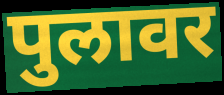
पुलावर